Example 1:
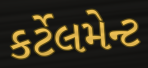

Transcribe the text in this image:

કર્ટેલમેન્ટ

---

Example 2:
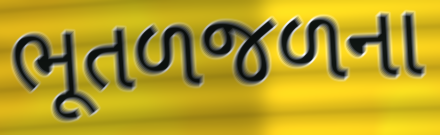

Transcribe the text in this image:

ભૂતળજળના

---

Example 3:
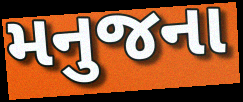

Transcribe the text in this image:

મનુજના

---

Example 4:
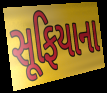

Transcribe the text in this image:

સૂફિયાના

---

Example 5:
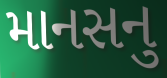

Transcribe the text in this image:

માનસનુ